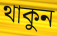
থাকুন